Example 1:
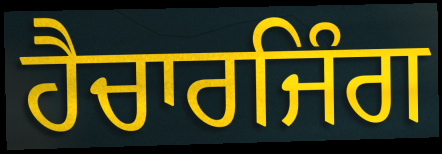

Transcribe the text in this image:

ਹੈਚਾਰਜਿੰਗ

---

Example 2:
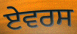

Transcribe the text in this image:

ਏਵਰਸ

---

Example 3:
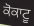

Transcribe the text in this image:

ਕੋਕਾਟੂ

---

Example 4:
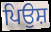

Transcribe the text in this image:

ਪਿਉਸ਼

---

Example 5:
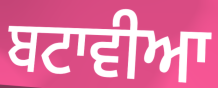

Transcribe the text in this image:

ਬਟਾਵੀਆ